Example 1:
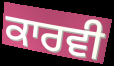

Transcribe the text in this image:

ਕਾਰਵੀ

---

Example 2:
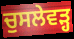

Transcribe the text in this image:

ਚੁਸਲੇਵੜ੍ਹ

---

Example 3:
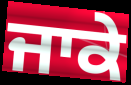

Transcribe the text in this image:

ਜਾਕੇ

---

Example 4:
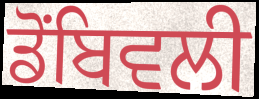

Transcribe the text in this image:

ਡੋਂਬਿਵਲੀ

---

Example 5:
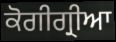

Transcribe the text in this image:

ਕੋਗੀਗ੍ਰੀਆ